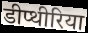
डीप्थीरिया